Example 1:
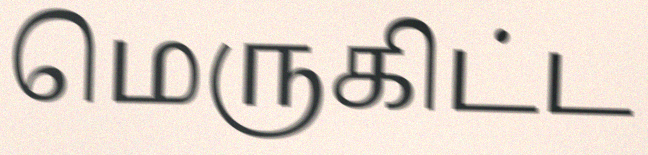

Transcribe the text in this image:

மெருகிட்ட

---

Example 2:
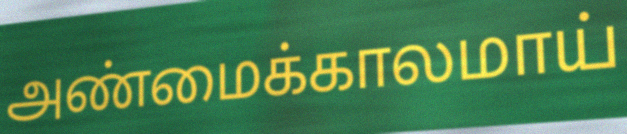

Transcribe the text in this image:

அண்மைக்காலமாய்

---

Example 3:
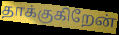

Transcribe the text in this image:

தாக்குகிறேன்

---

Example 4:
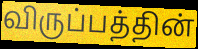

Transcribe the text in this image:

விருப்பத்தின்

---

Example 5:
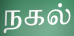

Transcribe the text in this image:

நகல்